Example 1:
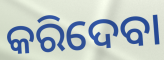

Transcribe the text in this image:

କରିଦେବା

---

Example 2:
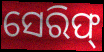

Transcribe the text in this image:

ସେରିଫ୍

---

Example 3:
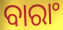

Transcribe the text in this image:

ବାରାଂ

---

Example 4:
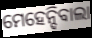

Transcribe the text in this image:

ମେହେନ୍ଦିବାଲା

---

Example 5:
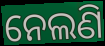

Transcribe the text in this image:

ନେଲଣି